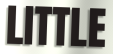
LITTLE